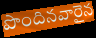
పొందినవారైన